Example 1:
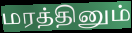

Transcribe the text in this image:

மரத்தினும்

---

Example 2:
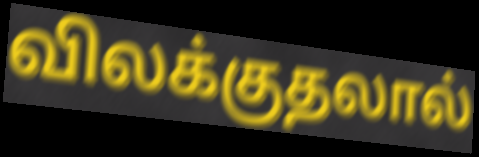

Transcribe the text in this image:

விலக்குதலால்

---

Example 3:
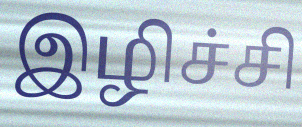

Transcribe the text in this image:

இழிச்சி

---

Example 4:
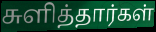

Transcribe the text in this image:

சுளித்தார்கள்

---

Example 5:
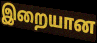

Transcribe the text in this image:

இறையான